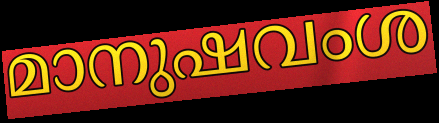
മാനുഷവംശ